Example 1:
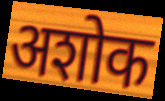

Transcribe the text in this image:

अशोक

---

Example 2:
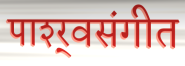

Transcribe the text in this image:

पाश्र्वसंगीत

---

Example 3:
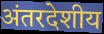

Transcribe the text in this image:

अंतरदेशीय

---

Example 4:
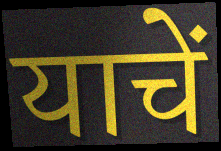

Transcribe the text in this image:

याचें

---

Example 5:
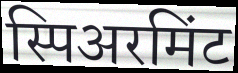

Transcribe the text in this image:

स्पिअरमिंट